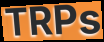
TRPs